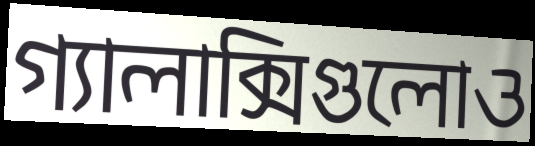
গ্যালাক্সিগুলোও